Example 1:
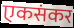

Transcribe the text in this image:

एकसंकर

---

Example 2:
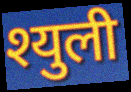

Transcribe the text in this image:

श्युली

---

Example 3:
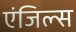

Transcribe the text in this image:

एंजिल्स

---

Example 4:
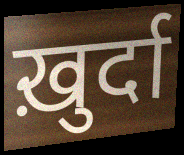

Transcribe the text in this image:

ख़ुर्दा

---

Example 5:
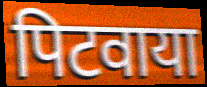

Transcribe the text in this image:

पिटवाया